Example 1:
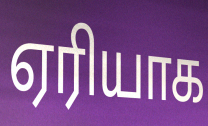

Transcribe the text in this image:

ஏரியாக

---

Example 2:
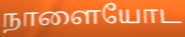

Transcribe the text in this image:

நாளையோட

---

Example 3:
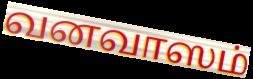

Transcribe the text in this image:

வனவாஸம்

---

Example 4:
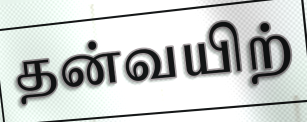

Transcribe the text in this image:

தன்வயிற்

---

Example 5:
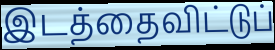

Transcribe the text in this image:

இடத்தைவிட்டுப்